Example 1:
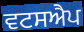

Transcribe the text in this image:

ਵਟਸਐਪ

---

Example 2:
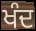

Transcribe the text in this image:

ਖੰਦ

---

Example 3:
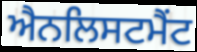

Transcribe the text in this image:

ਐਨਲਿਸਟਮੈਂਟ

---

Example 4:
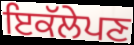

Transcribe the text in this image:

ਇਕੱਲੇਪਣ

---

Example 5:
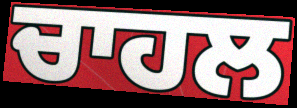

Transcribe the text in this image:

ਚਾਹਲ